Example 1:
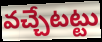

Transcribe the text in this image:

వచ్చేటట్టు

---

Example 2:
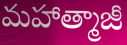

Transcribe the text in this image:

మహాత్మాజీ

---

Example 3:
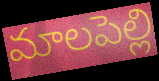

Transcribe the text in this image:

మాలపెల్లి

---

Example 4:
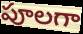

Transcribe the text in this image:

పూలగా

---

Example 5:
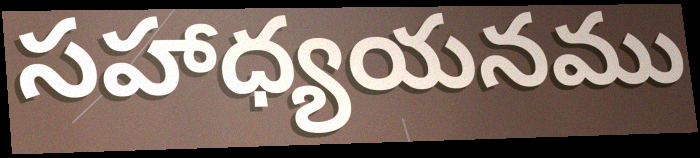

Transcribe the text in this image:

సహాధ్యయనము